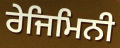
ਰੇਜਿਮਿਨੀ